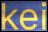
kei